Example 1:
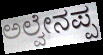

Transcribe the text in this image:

ಅಲ್ವೇನಪ್ಪ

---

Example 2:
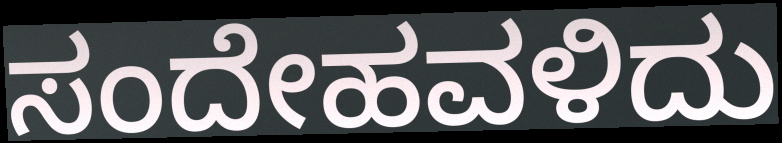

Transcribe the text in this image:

ಸಂದೇಹವಳಿದು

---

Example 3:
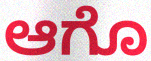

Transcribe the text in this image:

ಆಗೊ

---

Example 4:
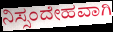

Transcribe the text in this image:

ನಿಸ್ಸಂದೇಹವಾಗಿ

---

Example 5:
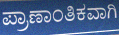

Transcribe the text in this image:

ಪ್ರಾಣಾಂತಿಕವಾಗಿ